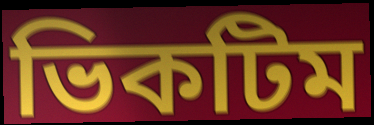
ভিকটিম